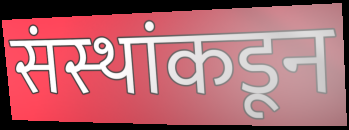
संस्थांकडून